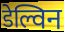
डेल्विन